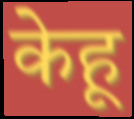
केहू